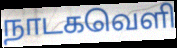
நாடகவெளி